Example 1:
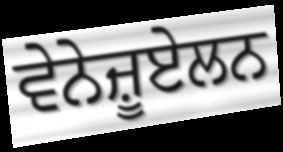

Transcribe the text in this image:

ਵੇਨੇਜ਼ੂਏਲਨ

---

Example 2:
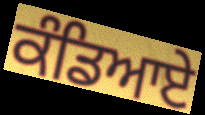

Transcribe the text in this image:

ਕੰਡਿਆਏ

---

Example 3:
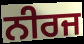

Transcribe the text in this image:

ਨੀਰਜ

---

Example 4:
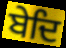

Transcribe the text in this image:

ਬੇਦਿ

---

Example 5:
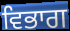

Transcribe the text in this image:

ਵਿਭਾਗ